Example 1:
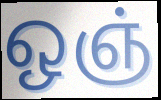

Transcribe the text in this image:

ஒஞ்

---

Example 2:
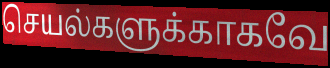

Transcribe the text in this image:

செயல்களுக்காகவே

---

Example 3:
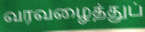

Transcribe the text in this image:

வரவழைத்துப்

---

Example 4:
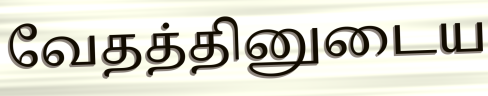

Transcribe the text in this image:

வேதத்தினுடைய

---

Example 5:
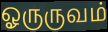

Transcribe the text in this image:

ஓருருவம்